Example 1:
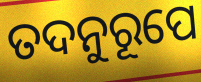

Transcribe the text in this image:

ତଦନୁରୂପେ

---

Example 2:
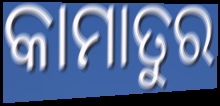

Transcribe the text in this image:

କାମାତୁର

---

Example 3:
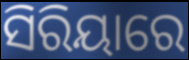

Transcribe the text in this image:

ସିରିୟାରେ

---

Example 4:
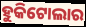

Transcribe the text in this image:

ହୁକିଟୋଲାର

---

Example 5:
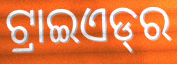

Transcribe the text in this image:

ଟ୍ରାଇଏଡ୍‌ର